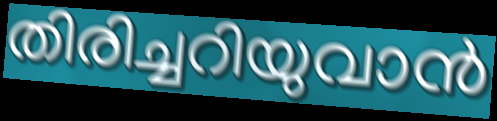
തിരിച്ചറിയുവാൻ